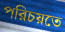
পরিচয়তে